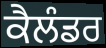
ਕੈਲੰਡਰ